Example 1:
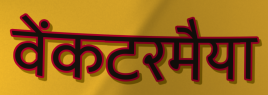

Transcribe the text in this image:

वेंकटरमैया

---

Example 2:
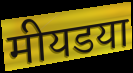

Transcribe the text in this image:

मीयडया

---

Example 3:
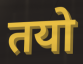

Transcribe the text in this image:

तयो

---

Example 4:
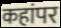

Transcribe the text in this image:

कहांपर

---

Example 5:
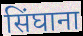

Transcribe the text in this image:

सिंघाना